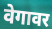
वेगावर